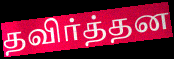
தவிர்த்தன